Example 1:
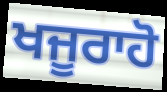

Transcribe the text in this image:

ਖਜੂਰਾਹੋ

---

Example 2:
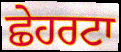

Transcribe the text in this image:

ਛੇਹਰਟਾ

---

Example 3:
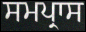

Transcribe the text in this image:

ਸਮਪ੍ਰਾਸ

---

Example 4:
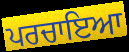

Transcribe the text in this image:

ਪਰਚਾਇਆ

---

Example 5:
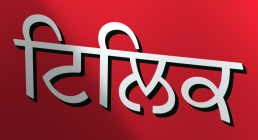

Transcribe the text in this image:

ਟਿਲਿਕ